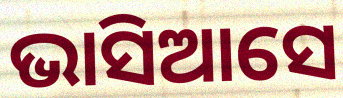
ଭାସିଆସେ